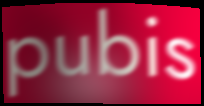
pubis